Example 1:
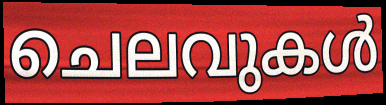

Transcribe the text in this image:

ചെലവുകൾ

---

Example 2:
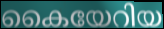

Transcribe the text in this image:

കൈയേറിയ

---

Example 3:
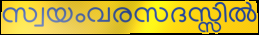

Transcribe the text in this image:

സ്വയംവരസദസ്സിൽ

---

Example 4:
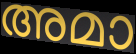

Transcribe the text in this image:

അമാ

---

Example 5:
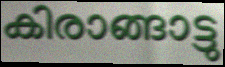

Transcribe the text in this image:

കിരാങ്ങാട്ടു